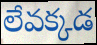
లేవక్కడ